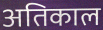
अतिकाल